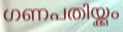
ഗണപതിയ്ക്കും